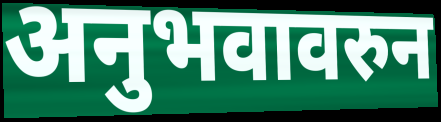
अनुभवावरुन